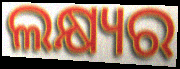
ଲକ୍ଷ୍ୟର